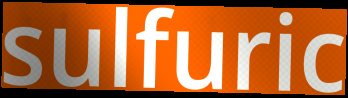
sulfuric